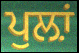
ਪੁਲ਼ਾਂ